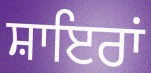
ਸ਼ਾਇਰਾਂ